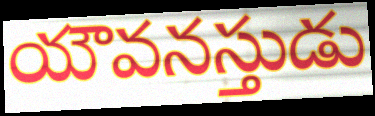
యౌవనస్తుడు